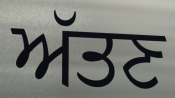
ਅੱਤਣ